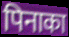
पिनाका